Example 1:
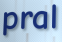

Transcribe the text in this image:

pral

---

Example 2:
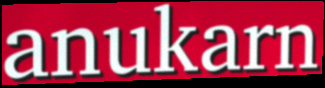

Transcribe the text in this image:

anukarn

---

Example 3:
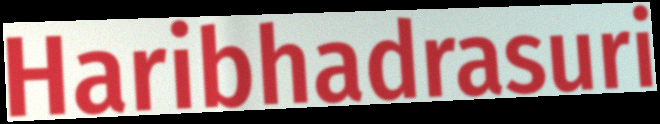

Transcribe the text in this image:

Haribhadrasuri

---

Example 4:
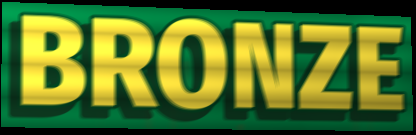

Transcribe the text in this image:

BRONZE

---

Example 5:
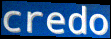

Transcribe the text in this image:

credo